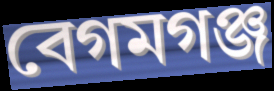
বেগমগঞ্জ